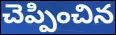
చెప్పించిన